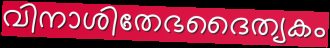
വിനാശിതേഭദൈത്യകം